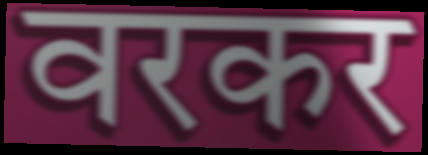
वरकर